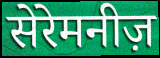
सेरेमनीज़